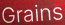
Grains